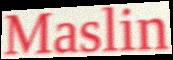
Maslin